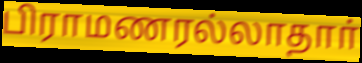
பிராமணரல்லாதார்